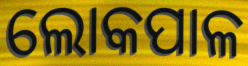
ଲୋକପାଳ